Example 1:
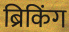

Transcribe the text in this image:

ब्रिकिंग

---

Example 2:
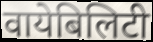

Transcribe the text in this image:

वायेबिलिटी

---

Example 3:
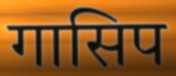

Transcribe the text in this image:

गासिप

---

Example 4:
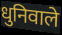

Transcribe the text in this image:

धुनिवाले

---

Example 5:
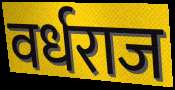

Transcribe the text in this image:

वर्धराज